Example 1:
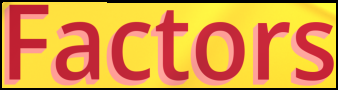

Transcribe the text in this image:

Factors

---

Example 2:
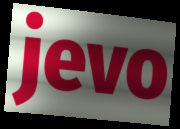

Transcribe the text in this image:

jevo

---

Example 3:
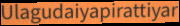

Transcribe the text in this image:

Ulagudaiyapirattiyar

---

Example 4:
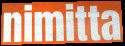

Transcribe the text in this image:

nimitta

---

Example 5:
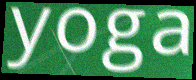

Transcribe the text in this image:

yoga